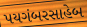
પયગંબરસાહેબ